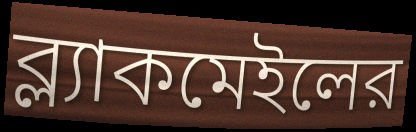
ব্ল্যাকমেইলের